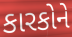
કારકોને